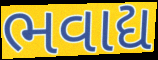
ભવાદ્ય